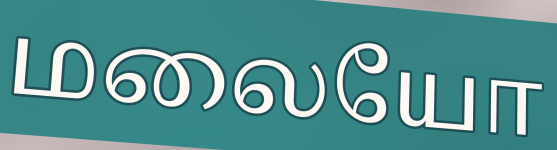
மலையோ